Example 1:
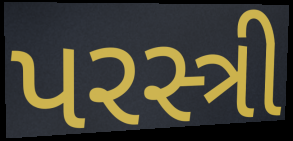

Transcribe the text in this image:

પરસ્ત્રી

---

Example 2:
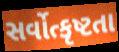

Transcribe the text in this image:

સર્વોત્કૃષ્ટતા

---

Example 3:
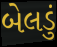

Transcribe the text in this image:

બેલડું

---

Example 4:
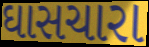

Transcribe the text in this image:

ઘાસચારા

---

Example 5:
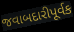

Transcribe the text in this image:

જવાબદારીપૂર્વક